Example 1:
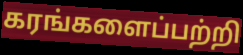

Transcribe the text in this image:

கரங்களைப்பற்றி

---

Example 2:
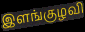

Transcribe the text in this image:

இளங்குழவி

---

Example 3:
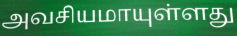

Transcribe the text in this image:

அவசியமாயுள்ளது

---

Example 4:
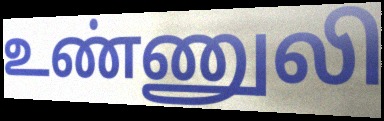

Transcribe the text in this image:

உண்ணுலி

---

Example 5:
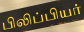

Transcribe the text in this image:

பிலிப்பியர்